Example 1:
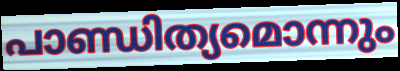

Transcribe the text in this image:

പാണ്ഡിത്യമൊന്നും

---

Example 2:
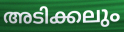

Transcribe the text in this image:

അടിക്കലും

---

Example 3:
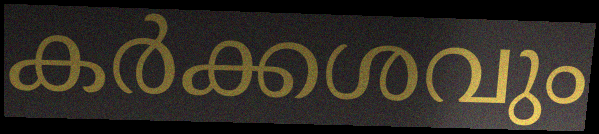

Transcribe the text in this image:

കർക്കശവും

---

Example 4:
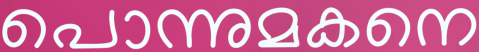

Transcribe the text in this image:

പൊന്നുമകനെ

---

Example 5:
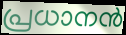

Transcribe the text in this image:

പ്രധാനൻ